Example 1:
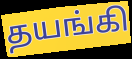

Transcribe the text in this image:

தயங்கி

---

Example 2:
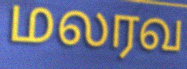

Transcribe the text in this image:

மலரவ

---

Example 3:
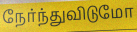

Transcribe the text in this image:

நேர்ந்துவிடுமோ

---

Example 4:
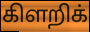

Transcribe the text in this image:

கிளறிக்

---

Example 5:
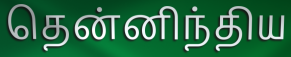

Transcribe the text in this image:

தென்னிந்திய